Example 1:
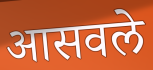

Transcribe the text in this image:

आसवले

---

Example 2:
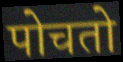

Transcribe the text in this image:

पोचतो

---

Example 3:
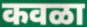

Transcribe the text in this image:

कवळा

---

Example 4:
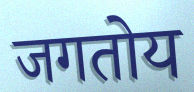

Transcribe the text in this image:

जगतोय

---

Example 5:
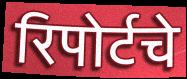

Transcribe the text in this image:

रिपोर्टचे